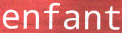
enfant